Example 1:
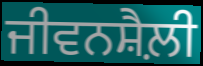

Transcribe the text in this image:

ਜੀਵਨਸ਼ੈਲ਼ੀ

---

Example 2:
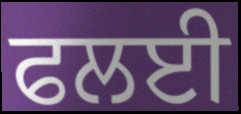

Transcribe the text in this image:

ਫਲਈ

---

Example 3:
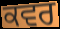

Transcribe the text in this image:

ਕਵਰ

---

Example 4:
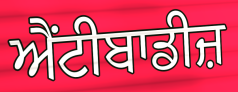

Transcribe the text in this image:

ਐਂਟੀਬਾਡੀਜ਼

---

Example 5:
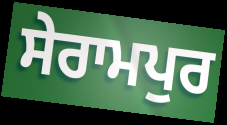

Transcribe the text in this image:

ਸੇਰਾਮਪੁਰ